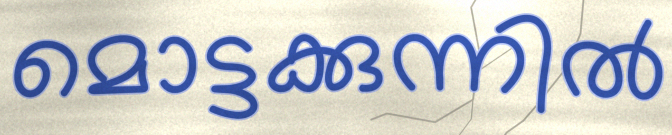
മൊട്ടക്കുന്നിൽ